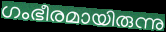
ഗംഭീരമായിരുന്നു